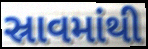
સ્રાવમાંથી